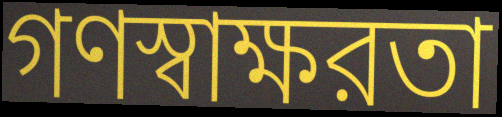
গণস্বাক্ষরতা